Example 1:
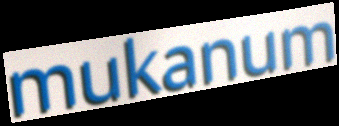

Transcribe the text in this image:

mukanum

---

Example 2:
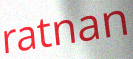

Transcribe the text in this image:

ratnan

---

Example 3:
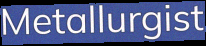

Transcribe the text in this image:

Metallurgist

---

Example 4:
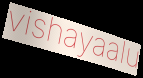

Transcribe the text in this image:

vishayaalu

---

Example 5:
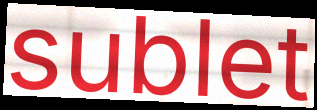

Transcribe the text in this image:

sublet